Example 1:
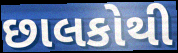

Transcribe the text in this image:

છાલકોથી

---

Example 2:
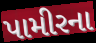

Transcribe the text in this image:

પામીરના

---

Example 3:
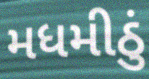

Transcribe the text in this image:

મધમીઠું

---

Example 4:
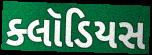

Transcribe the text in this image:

ક્લૉડિયસ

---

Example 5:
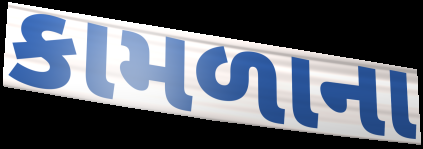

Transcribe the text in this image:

કામળાના